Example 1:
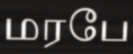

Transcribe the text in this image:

மரபே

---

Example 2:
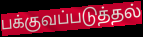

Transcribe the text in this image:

பக்குவப்படுத்தல்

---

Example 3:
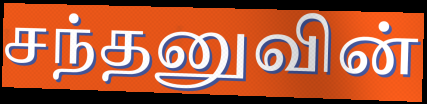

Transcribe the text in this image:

சந்தனுவின்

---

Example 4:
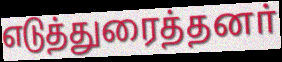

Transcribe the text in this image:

எடுத்துரைத்தனர்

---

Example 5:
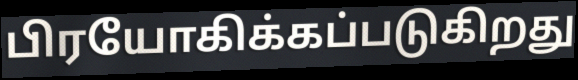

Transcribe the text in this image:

பிரயோகிக்கப்படுகிறது